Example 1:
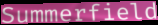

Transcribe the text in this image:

Summerfield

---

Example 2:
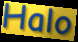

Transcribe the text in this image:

Halo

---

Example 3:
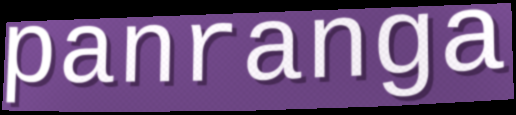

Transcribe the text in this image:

panranga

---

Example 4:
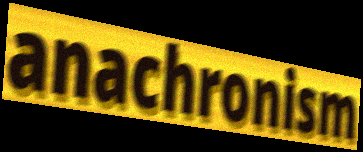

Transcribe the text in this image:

anachronism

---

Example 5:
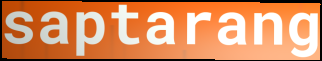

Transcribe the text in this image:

saptarang